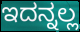
ಇದನ್ನಲ್ಲ